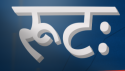
रूटः